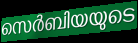
സെർബിയയുടെ